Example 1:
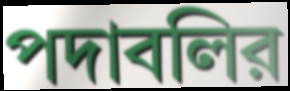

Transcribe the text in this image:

পদাবলির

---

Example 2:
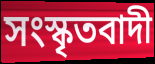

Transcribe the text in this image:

সংস্কৃতবাদী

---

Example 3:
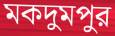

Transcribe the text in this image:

মকদুমপুর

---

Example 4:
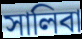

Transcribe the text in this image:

সালিবা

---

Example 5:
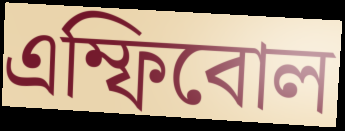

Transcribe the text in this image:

এম্ফিবোল